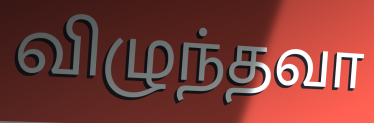
விழுந்தவா